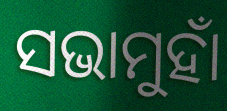
ସଭାମୁହାଁ